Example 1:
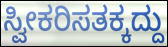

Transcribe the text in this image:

ಸ್ವೀಕರಿಸತಕ್ಕದ್ದು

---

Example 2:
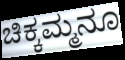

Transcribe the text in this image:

ಚಿಕ್ಕಮ್ಮನೂ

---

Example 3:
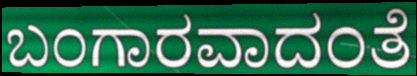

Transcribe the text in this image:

ಬಂಗಾರವಾದಂತೆ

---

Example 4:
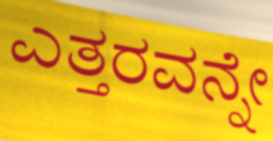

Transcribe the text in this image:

ಎತ್ತರವನ್ನೇ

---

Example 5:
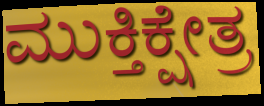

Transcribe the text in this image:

ಮುಕ್ತಿಕ್ಷೇತ್ರ